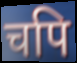
चपि